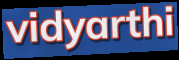
vidyarthi